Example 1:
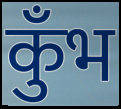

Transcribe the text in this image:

कुँभ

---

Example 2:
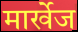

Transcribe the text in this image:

मार्खेज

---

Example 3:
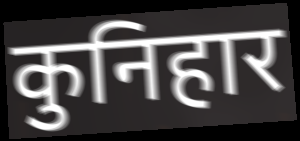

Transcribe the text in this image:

कुनिहार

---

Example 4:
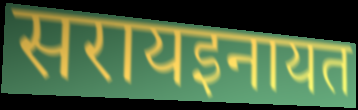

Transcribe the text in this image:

सरायइनायत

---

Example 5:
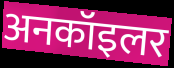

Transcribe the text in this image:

अनकॉइलर